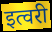
इत्वरी